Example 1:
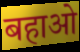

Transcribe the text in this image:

बहाओ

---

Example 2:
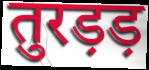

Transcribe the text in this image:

तुरड़ड़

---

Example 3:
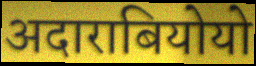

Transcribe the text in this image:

अदाराबियोयो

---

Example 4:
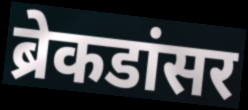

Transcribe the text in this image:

ब्रेकडांसर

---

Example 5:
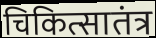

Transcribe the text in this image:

चिकित्सातंत्र